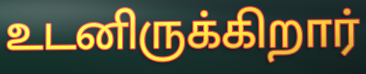
உடனிருக்கிறார்